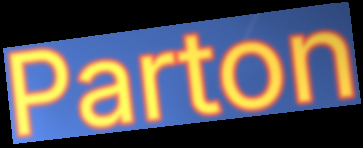
Parton